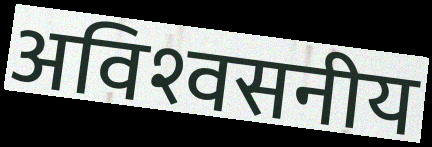
अविश्वसनीय